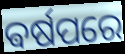
ଵର୍ଷପରେ